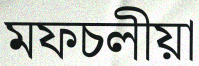
মফচলীয়া